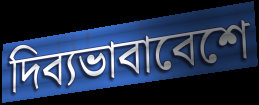
দিব্যভাবাবেশে